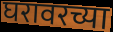
घरावरच्या